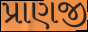
પ્રાણજી